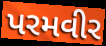
પરમવીર